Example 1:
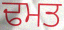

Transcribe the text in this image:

ਢਮਤ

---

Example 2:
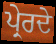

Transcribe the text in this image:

ਪ੍ਰੇਰਦੇ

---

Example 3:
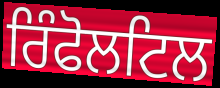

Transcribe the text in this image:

ਰਿੰਫੋਲਟਿਲ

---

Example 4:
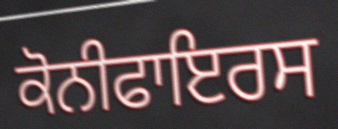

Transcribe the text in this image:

ਕੋਨੀਫਾਇਰਸ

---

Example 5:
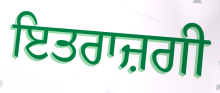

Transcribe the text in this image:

ਇਤਰਾਜ਼ਗੀ